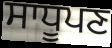
ਸਾਧੂਪਣ